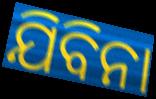
ଯିବିନା